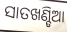
ସାତଖଣ୍ଡିଆ